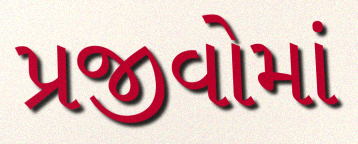
પ્રજીવોમાં